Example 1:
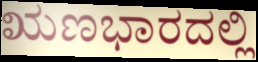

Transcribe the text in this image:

ಋಣಭಾರದಲ್ಲಿ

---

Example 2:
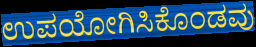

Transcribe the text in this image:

ಉಪಯೋಗಿಸಿಕೊಂಡವು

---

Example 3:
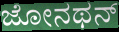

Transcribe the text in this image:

ಜೋನಥನ್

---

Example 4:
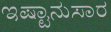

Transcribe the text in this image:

ಇಷ್ಟಾನುಸಾರ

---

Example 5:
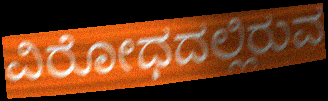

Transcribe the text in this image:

ವಿರೋಧದಲ್ಲಿರುವ